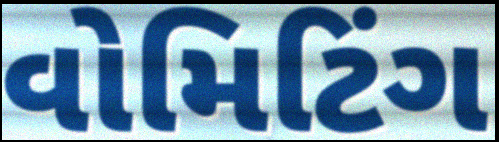
વોમિટિંગ